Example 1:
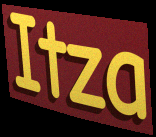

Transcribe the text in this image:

Itza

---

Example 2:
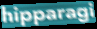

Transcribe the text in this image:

hipparagi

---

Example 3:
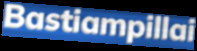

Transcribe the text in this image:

Bastiampillai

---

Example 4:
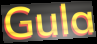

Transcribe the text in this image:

Gula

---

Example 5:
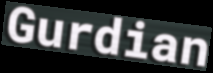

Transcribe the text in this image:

Gurdian